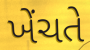
ખેંચતે